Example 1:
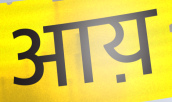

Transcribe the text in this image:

आय़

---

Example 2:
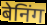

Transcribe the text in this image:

बेनिंग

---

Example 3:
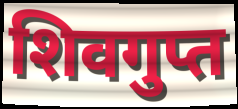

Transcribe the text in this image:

शिवगुप्त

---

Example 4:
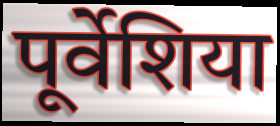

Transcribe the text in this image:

पूर्वेशिया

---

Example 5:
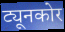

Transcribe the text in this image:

ट्यूनकोर